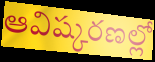
ఆవిష్కరణల్లో